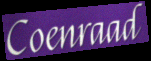
Coenraad